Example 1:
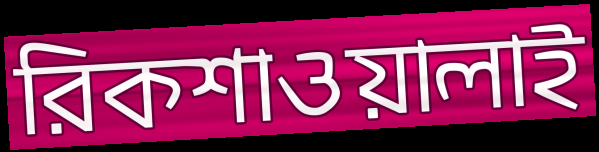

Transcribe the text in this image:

রিকশাওয়ালাই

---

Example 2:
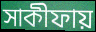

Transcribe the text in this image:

সাকীফায়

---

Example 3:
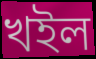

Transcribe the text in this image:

খইল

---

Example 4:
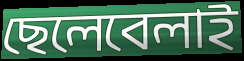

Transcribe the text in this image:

ছেলেবেলাই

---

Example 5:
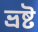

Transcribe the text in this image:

ভ্রষ্ট